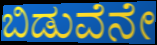
ಬಿಡುವೆನೇ